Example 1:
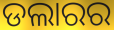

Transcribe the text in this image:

ଡଲାରର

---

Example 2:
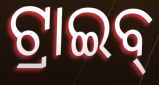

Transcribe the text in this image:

ଟ୍ରାଇବ୍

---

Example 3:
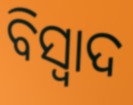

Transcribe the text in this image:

ବିସ୍ୱାଦ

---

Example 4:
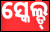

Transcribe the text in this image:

ସ୍କେଲ୍ଡ୍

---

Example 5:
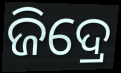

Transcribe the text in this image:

ଜିଦ୍ରେ